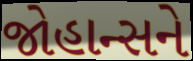
જોહાન્સને